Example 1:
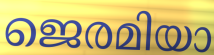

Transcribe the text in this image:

ജെരമിയാ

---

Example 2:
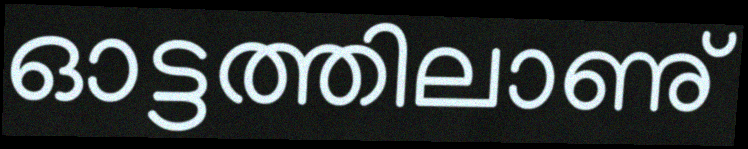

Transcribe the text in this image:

ഓട്ടത്തിലാണു്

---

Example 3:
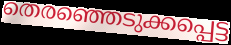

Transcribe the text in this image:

തെരഞ്ഞെടുക്കപ്പെട്ട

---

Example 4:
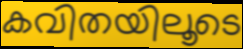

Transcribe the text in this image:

കവിതയിലൂടെ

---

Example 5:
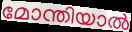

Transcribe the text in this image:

മോന്തിയാൽ